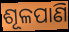
ଶୂଳପାଣି